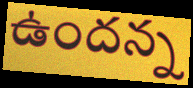
ఉందన్న